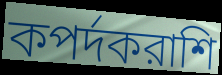
কপর্দকরাশি